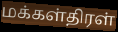
மக்கள்திரள்